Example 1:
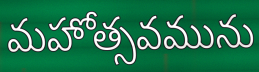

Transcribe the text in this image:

మహోత్సవమును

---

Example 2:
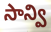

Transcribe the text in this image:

సాన్వి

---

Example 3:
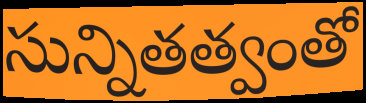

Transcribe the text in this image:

సున్నితత్వంతో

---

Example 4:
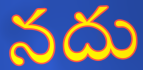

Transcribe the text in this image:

నదు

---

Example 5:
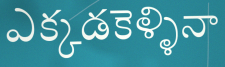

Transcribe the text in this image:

ఎక్కడకెళ్ళినా